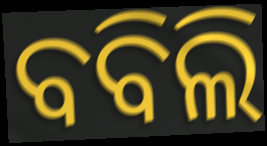
ବବିଲି